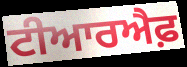
ਟੀਆਰਐਫ਼